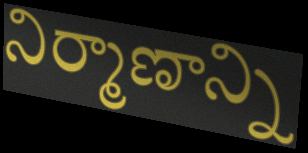
నిర్మాణాన్ని